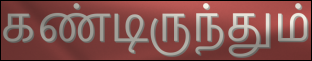
கண்டிருந்தும்